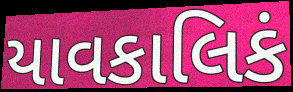
યાવકાલિકં